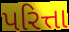
પરિત્તા